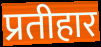
प्रतीहार